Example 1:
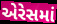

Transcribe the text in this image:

એરેસમાં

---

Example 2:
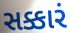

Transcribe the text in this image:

સક્કારં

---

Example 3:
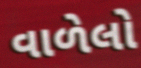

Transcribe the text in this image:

વાળેલો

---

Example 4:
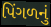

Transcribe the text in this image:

પિંગળનું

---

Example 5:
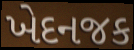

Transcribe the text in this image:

ખેદનજક